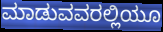
ಮಾಡುವವರಲ್ಲಿಯೂ